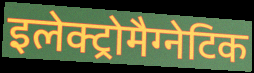
इलेक्ट्रोमैग्नेटिक